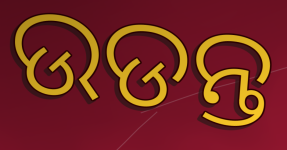
ଉଡନ୍ତ